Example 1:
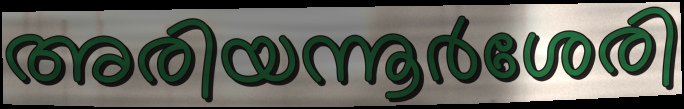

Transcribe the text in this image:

അരിയന്നൂർശേരി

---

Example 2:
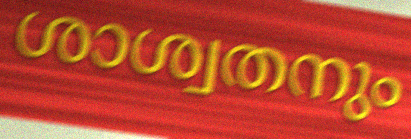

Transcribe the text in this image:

ശാശ്വതനും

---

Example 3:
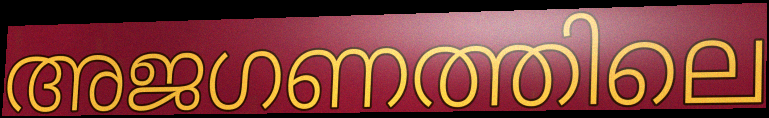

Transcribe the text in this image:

അജഗണത്തിലെ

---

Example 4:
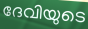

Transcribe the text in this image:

ദേവിയുടെ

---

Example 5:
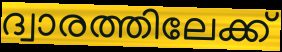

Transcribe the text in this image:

ദ്വാരത്തിലേക്ക്